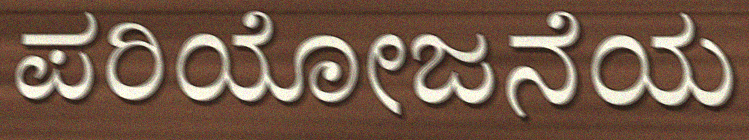
ಪರಿಯೋಜನೆಯ